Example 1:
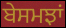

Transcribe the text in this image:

ਬੇਸਮਝਾਂ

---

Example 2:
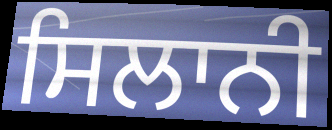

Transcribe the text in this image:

ਸਿਲਾਨੀ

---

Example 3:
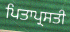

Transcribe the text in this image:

ਪਿਤਾਪ੍ਰਸਤੀ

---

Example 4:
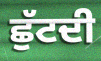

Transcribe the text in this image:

ਛੁੱਟਦੀ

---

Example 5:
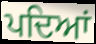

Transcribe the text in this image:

ਪਦਿਆਂ